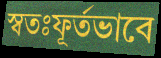
স্বতঃফূর্তভাবে